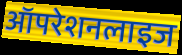
ऑपरेशनलाइज